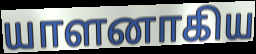
யாளனாகிய